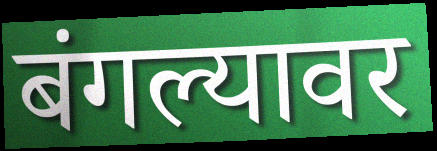
बंगल्यावर